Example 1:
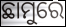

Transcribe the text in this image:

ଛାମୁରେ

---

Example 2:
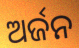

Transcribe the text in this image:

ଅର୍ଜନ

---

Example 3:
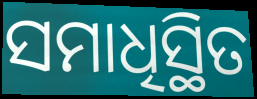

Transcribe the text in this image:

ସମାଧିସ୍ଥିତ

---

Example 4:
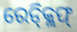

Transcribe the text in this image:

ରେଡ୍କ୍ଲିଫ୍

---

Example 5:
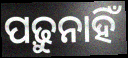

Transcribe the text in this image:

ପଢ଼ୁନାହିଁ